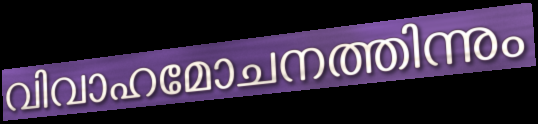
വിവാഹമോചനത്തിന്നും